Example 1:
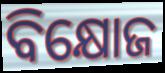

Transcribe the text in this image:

ବିକ୍ଷୋଜ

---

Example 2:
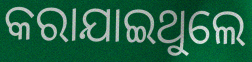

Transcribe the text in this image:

କରାଯାଇଥୁଲେ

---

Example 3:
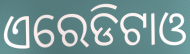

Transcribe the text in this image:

ଏରେଡିଟାଓ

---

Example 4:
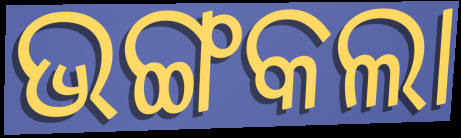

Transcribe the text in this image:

ଭଙ୍ଗକଲା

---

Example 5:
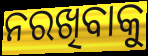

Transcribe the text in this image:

ନରଖିବାକୁ